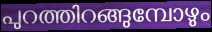
പുറത്തിറങ്ങുമ്പോഴും